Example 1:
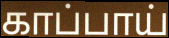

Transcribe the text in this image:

காப்பாய்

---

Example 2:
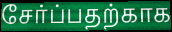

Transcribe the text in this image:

சேர்ப்பதற்காக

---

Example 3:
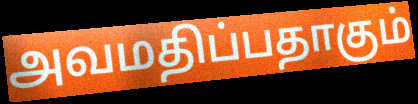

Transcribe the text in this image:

அவமதிப்பதாகும்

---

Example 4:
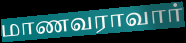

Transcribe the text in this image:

மாணவராவார்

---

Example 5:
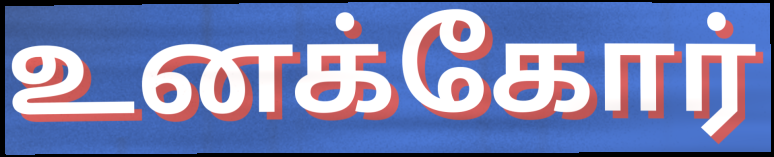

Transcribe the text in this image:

உனக்கோர்